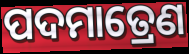
ପଦମାତ୍ରେଣ